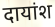
दायांश